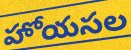
హోయసల